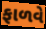
ફાળવે